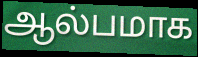
ஆல்பமாக